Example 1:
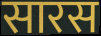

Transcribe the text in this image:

सारस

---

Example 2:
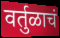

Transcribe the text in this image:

वर्तुळाचं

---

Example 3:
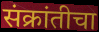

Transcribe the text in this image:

संक्रांतीचा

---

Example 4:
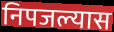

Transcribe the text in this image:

निपजल्यास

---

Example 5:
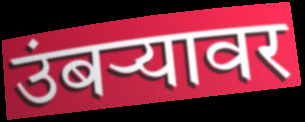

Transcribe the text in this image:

उंबर्‍यावर